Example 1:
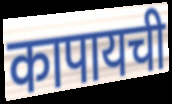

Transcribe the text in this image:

कापायची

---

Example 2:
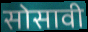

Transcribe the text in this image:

सोसावी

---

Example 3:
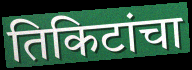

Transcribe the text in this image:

तिकिटांचा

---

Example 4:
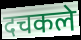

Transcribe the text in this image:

दचकले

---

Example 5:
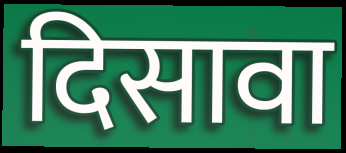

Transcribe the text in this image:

दिसावा